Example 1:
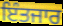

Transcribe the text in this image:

ਇੰਤਜਾਰ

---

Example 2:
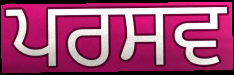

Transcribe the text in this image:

ਪਰਸਵ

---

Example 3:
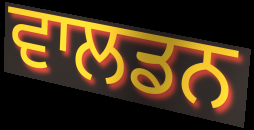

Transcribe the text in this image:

ਵਾਲਡਨ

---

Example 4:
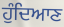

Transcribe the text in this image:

ਹੁੰਦਿਆਣ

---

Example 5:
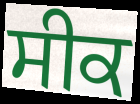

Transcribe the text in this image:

ਸੀਕ